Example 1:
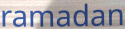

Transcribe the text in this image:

ramadan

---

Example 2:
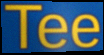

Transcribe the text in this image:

Tee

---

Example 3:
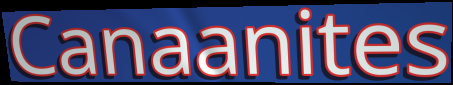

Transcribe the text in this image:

Canaanites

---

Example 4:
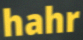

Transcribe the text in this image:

hahr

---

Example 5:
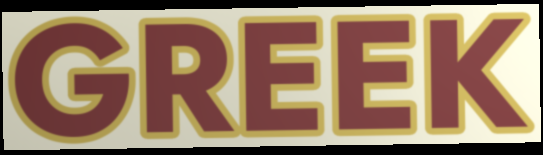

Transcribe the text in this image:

GREEK